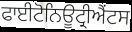
ਫਾਈਟੋਨਿਊਟ੍ਰੀਐਂਟਸ